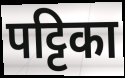
पट्टिका